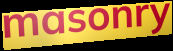
masonry